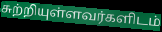
சுற்றியுள்ளவர்களிடம்